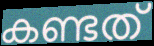
കണ്ടത്